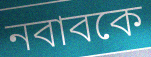
নবাবকে